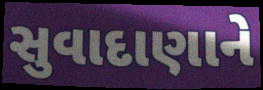
સુવાદાણાને